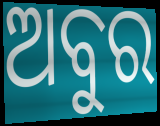
ଅବୁର